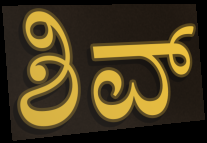
ಶಿವ್